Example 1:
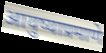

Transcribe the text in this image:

आयुष्याप्रमाणे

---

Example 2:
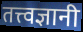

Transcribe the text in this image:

तत्त्वज्ञानी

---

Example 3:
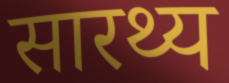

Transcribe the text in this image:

सारथ्य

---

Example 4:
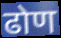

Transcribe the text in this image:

ढोण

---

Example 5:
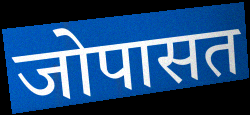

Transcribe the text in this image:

जोपासत